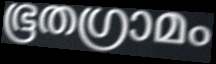
ഭൂതഗ്രാമം